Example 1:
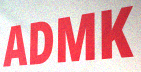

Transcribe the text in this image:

ADMK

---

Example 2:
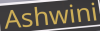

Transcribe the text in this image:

Ashwini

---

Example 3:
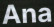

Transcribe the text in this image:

Ana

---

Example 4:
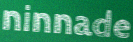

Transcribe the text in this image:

ninnade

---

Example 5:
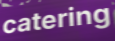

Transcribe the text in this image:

catering